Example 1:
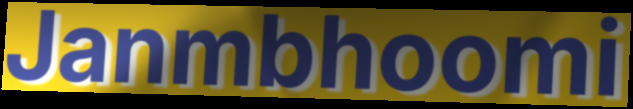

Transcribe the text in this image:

Janmbhoomi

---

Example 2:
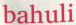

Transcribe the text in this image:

bahuli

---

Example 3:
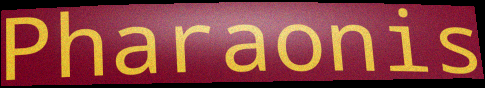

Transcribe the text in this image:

Pharaonis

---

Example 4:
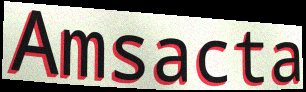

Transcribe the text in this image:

Amsacta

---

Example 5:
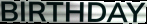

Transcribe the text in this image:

BIRTHDAY